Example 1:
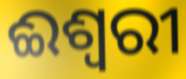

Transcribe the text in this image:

ଈଶ୍ଵରୀ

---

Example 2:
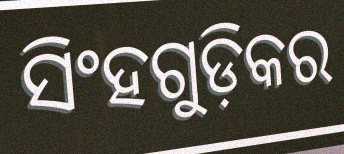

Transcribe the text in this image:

ସିଂହଗୁଡ଼ିକର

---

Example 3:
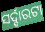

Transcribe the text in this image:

ସର୍ଦ୍ଦାରଟା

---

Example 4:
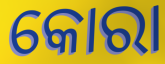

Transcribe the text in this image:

କୋରା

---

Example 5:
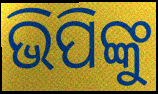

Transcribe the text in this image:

ଭିପିଙ୍କୁ